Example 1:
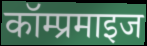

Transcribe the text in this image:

कॉम्प्रमाइज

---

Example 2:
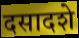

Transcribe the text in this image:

दसादशे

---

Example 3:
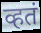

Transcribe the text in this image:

व्हतं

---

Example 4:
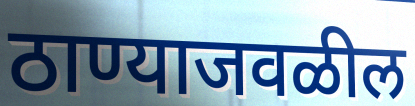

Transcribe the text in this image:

ठाण्याजवळील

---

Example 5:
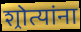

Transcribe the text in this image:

श्रोत्यांना